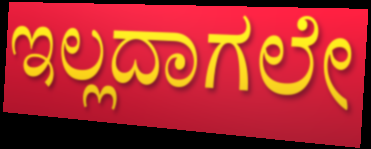
ಇಲ್ಲದಾಗಲೇ